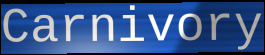
Carnivory